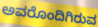
ಅವರೊಂದಿಗಿರುವ